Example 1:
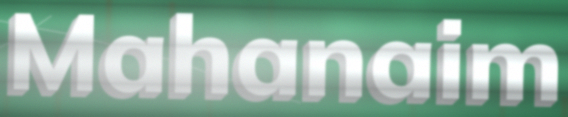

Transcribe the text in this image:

Mahanaim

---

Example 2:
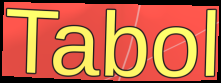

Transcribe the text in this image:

Tabol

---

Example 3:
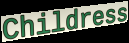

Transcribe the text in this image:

Childress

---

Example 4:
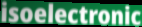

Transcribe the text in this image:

isoelectronic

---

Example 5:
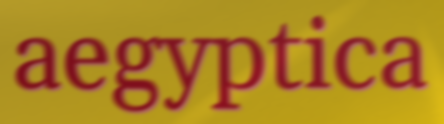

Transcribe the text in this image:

aegyptica